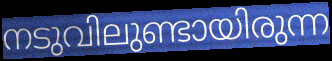
നടുവിലുണ്ടായിരുന്ന